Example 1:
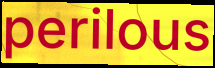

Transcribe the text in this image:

perilous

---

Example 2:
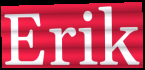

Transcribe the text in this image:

Erik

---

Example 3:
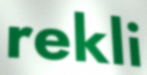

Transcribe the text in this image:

rekli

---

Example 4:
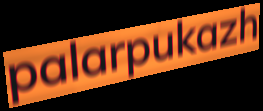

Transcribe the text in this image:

palarpukazh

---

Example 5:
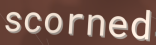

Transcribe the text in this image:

scorned